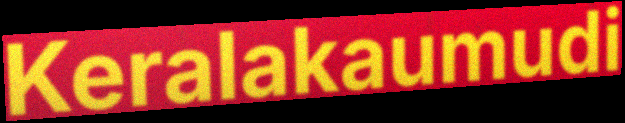
Keralakaumudi